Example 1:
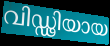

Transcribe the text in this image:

വിഡ്ഢിയായ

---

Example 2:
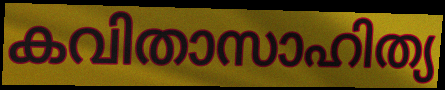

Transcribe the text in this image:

കവിതാസാഹിത്യ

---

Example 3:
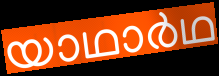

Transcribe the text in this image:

യാഥാർഥ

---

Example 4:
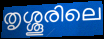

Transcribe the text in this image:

തൃശ്ശൂരിലെ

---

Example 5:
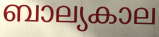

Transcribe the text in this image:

ബാല്യകാല